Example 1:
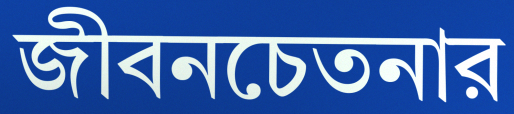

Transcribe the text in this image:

জীবনচেতনার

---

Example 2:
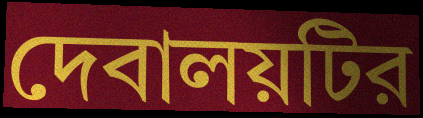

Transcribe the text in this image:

দেবালয়টির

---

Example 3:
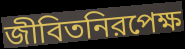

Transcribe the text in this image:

জীবিতনিরপেক্ষ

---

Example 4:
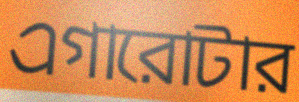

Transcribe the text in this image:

এগারোটার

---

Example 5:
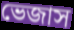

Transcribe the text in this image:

ভেজাস